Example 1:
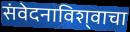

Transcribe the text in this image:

संवेदनाविश्वाचा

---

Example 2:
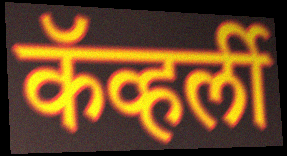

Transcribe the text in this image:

कॅव्हर्ली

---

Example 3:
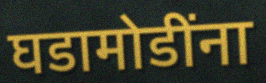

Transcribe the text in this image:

घडामोडींना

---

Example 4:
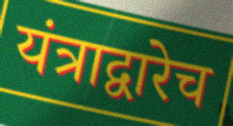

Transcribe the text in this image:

यंत्राद्वारेच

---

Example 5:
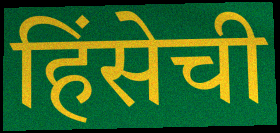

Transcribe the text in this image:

हिंसेची